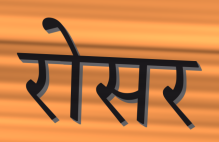
रोसर